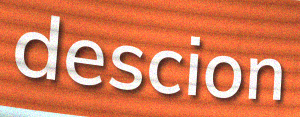
descion